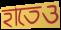
হাতেও